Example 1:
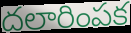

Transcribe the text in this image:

దలారింపక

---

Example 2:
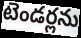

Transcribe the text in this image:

టెండర్లను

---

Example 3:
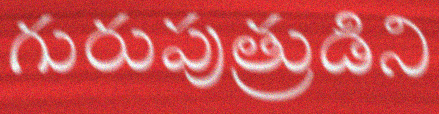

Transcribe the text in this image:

గురుపుత్రుడిని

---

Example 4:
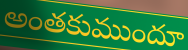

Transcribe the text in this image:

అంతకుముందూ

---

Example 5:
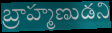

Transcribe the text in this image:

బ్రాహ్మణుడని